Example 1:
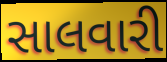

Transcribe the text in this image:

સાલવારી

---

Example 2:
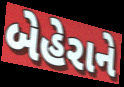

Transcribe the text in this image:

બેહેરાને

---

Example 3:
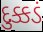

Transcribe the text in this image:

દુક્કડં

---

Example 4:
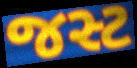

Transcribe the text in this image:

જસ્ટ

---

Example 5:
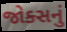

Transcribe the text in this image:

જોક્સનું